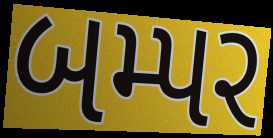
બમ્પર